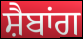
ਸ਼ੈਬਾਂਗ